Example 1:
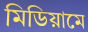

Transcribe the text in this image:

মিডিয়ামে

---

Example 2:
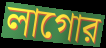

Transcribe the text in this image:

লাগোর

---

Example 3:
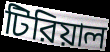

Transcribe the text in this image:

টিরিয়াল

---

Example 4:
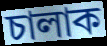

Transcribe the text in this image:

চালাক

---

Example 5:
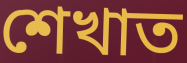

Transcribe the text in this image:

শেখাত